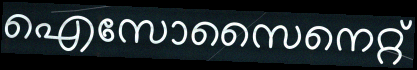
ഐസോസൈനെറ്റ്